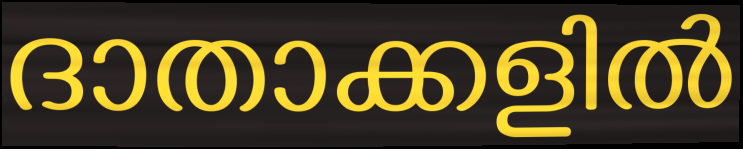
ദാതാക്കളിൽ